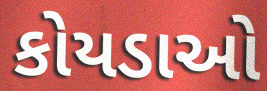
કોયડાઓ